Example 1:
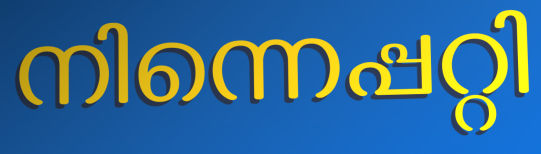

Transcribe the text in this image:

നിന്നെപ്പറ്റി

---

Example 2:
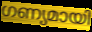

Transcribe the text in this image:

ഗണ്യമായി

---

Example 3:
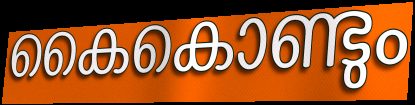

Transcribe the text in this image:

കൈകൊണ്ടും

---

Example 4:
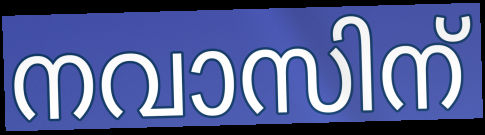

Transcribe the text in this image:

നവാസിന്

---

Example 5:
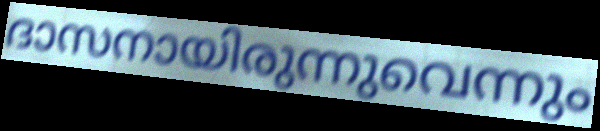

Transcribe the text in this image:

ദാസനായിരുന്നുവെന്നും